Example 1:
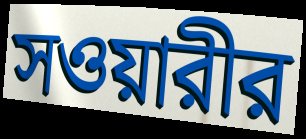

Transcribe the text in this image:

সওয়ারীর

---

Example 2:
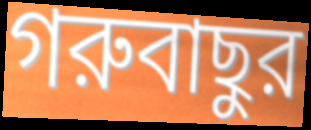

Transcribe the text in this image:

গরুবাছুর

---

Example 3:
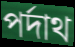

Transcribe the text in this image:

পর্দাথ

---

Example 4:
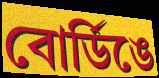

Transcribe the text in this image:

বোর্ডিঙে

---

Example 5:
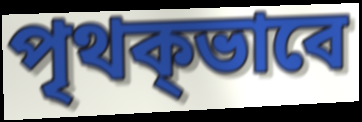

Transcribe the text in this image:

পৃথক্ভাবে